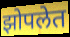
झोपलेत